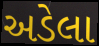
અડેલા